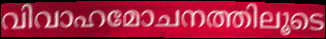
വിവാഹമോചനത്തിലൂടെ